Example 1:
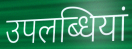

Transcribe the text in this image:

उपलब्धियां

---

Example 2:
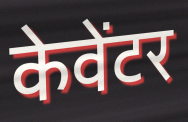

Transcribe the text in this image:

केवेंटर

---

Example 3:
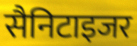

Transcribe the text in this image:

सैनिटाइजर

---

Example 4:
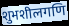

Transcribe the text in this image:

शुभशीलगणि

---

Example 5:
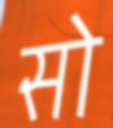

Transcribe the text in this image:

सो